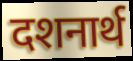
दशनार्थ